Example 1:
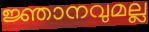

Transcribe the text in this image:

ജ്ഞാനവുമല്ല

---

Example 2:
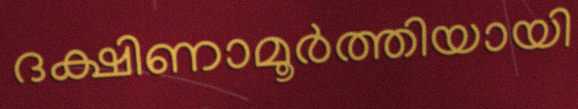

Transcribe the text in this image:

ദക്ഷിണാമൂർത്തിയായി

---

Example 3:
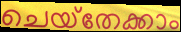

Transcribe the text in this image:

ചെയ്‌തേക്കാം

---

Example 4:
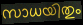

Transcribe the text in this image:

സാധയിതും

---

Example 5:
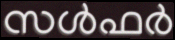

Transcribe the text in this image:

സൾഫർ